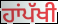
ਹਾਂਪੱਖੀ